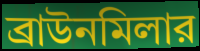
ব্রাউনমিলার